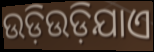
ଉଡ଼ିଉଡ଼ିଯାଏ